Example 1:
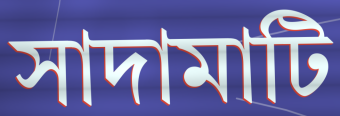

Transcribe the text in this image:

সাদামাটি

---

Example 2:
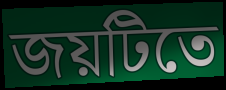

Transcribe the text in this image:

জয়টিতে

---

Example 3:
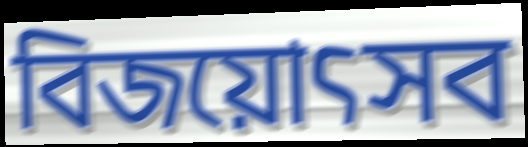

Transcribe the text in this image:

বিজয়োৎসব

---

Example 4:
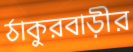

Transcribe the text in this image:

ঠাকুরবাড়ীর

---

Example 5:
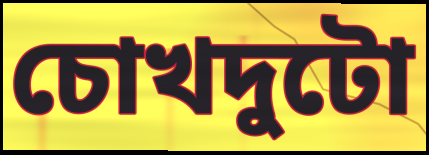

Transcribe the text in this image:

চোখদুটো